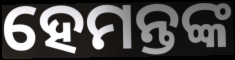
ହେମନ୍ତଙ୍କ